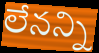
లేనన్ని